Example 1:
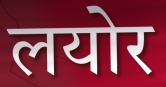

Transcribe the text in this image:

लयोर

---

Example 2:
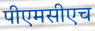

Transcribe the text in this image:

पीएमसीएच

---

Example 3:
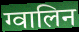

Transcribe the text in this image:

ग्वालिन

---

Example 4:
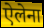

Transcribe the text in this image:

ऐलेना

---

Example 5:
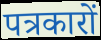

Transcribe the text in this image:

पत्रकारों